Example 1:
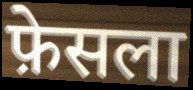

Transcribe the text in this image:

फ़ेसला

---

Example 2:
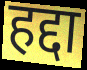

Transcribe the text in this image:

हद्दा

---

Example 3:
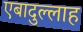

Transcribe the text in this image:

एबादुल्लाह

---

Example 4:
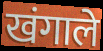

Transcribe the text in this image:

खंगाले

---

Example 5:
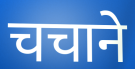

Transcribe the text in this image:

चचाने